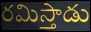
రమిస్తాడు